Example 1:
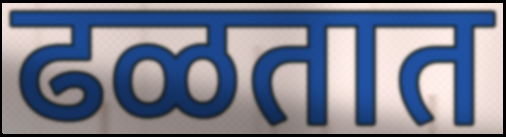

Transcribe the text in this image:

ढळतात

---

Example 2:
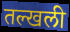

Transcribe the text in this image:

तल्खली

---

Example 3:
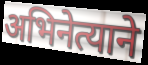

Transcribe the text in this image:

अभिनेत्याने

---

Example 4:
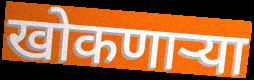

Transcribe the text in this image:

खोकणाऱ्या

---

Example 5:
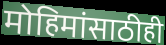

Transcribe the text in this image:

मोहिमांसाठीही